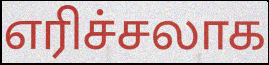
எரிச்சலாக